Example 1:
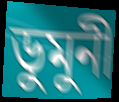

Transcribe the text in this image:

ডুমুনী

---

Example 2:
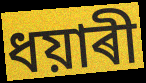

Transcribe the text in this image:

ধয়াৰী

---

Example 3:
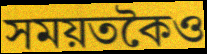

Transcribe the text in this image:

সময়তকৈও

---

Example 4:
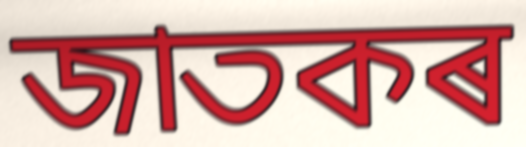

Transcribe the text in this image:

জাতকৰ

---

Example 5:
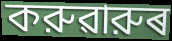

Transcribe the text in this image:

কৰুৱাৰুৰ